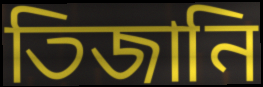
তিজানি